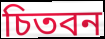
চিতবন